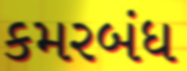
કમરબંધ